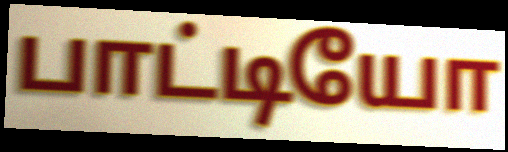
பாட்டியோ